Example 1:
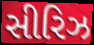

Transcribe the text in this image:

સીરિઝ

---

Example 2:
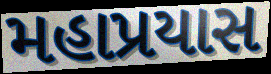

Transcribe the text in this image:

મહાપ્રયાસ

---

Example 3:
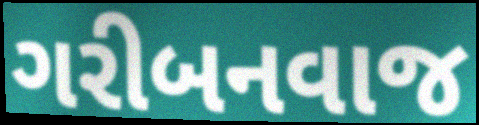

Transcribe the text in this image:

ગરીબનવાજ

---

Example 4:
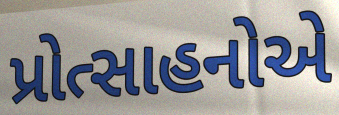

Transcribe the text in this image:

પ્રોત્સાહનોએ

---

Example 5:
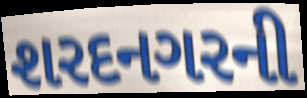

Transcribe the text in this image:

શરદનગરની